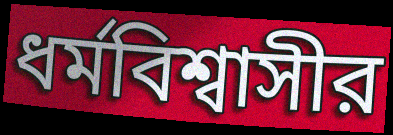
ধর্মবিশ্বাসীর